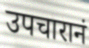
उपचारानं